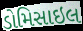
ડોમિસાઇલ